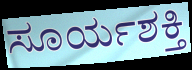
ಸೂರ್ಯಶಕ್ತಿ